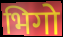
भिगो